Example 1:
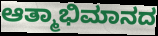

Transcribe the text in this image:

ಆತ್ಮಾಭಿಮಾನದ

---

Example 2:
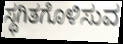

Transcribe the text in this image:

ಸ್ಥಗಿತಗೊಳಿಸುವ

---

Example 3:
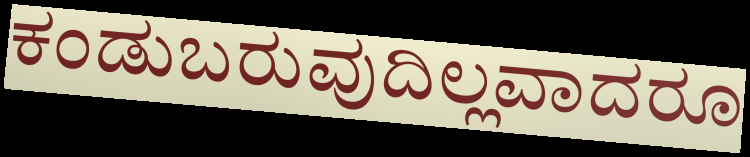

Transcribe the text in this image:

ಕಂಡುಬರುವುದಿಲ್ಲವಾದರೂ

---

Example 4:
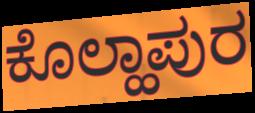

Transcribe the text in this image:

ಕೊಲ್ಹಾಪುರ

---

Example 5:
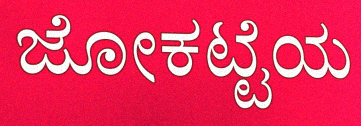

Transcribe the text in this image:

ಜೋಕಟ್ಟೆಯ